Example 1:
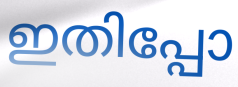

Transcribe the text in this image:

ഇതിപ്പോ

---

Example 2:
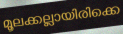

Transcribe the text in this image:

മൂലക്കല്ലായിരിക്കെ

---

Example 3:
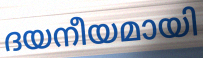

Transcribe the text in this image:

ദയനീയമായി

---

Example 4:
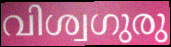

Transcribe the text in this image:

വിശ്വഗുരു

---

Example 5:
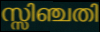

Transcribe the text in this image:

സ്സിഞ്ചതി